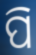
ପି